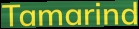
Tamarind